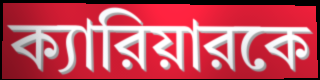
ক্যারিয়ারকে